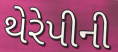
થેરેપીની